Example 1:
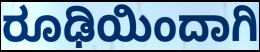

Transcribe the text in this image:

ರೂಢಿಯಿಂದಾಗಿ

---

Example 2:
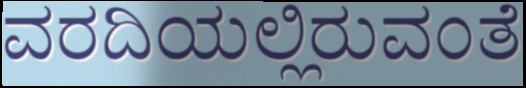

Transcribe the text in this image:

ವರದಿಯಲ್ಲಿರುವಂತೆ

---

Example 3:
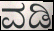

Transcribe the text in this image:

ವಡಿ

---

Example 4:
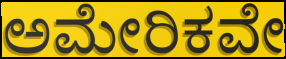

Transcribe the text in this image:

ಅಮೇರಿಕವೇ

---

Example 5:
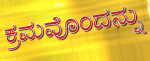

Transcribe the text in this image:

ಕ್ರಮವೊಂದನ್ನು